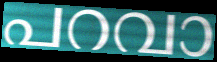
പറവാ